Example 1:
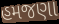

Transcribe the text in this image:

હમજણા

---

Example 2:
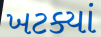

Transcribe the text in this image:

ખટક્યાં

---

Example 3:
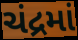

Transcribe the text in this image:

ચંદ્રમાં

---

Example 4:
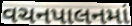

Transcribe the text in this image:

વચનપાલનમાં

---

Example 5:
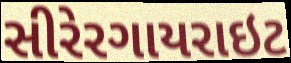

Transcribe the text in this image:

સીરેરગાયરાઇટ